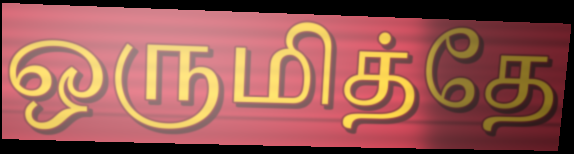
ஒருமித்தே